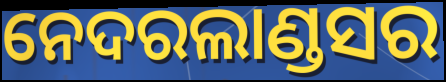
ନେଦରଲାଣ୍ଡସର